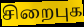
சிறைபுக